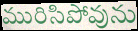
మురిసిపోవును